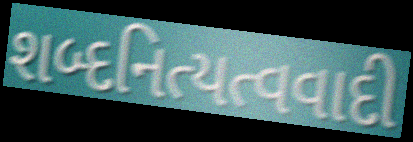
શબ્દનિત્યત્વવાદી